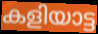
കളിയാട്ട